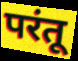
परंतू